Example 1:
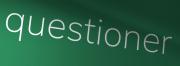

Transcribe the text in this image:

questioner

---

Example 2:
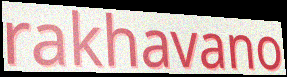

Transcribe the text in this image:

rakhavano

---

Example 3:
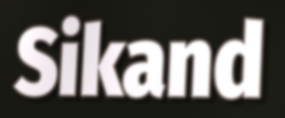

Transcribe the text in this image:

Sikand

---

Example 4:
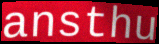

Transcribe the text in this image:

ansthu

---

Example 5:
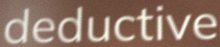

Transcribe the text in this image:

deductive